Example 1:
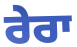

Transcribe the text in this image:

ਰੇਰਾ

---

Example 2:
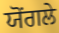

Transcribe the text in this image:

ਯੋਂਗਲੇ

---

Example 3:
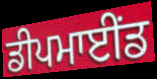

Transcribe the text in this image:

ਡੀਪਮਾਈਂਡ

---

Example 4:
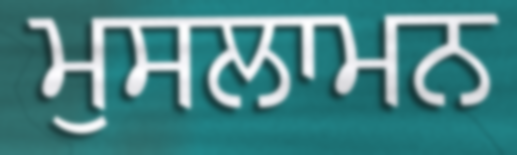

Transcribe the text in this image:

ਮੁਸਲਾਮਨ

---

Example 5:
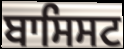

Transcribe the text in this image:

ਬਾਸਿਸਟ